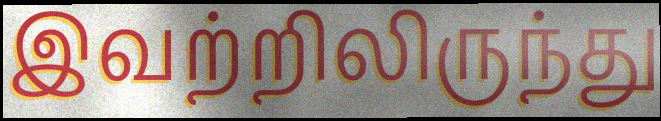
இவற்றிலிருந்து